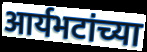
आर्यभटांच्या